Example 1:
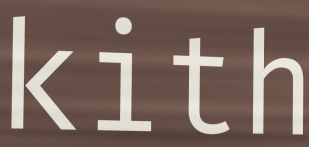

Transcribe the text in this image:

kith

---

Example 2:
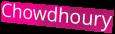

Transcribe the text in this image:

Chowdhoury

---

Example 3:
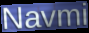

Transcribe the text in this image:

Navmi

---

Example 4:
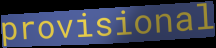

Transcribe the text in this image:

provisional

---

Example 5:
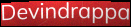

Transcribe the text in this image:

Devindrappa